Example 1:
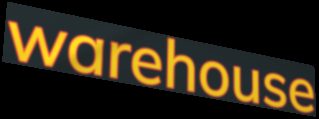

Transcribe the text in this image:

warehouse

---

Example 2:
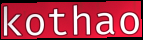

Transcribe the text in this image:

kothao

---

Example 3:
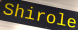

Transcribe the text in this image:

Shirole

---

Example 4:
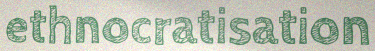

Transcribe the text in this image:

ethnocratisation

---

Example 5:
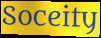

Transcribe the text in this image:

Soceity